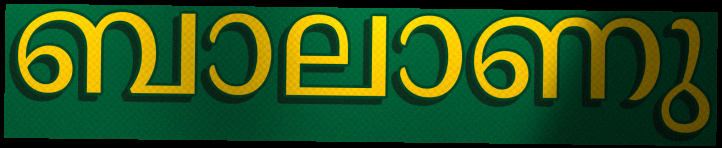
ബാലാണു